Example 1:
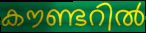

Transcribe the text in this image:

കൗണ്ടറിൽ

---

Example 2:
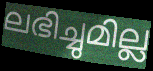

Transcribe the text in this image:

ലഭിച്ചുമില്ല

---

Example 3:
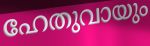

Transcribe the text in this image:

ഹേതുവായും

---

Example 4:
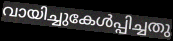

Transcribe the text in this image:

വായിച്ചുകേൾപ്പിച്ചതു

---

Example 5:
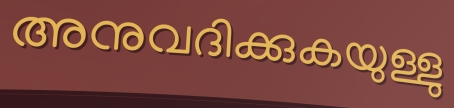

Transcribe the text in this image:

അനുവദിക്കുകയുള്ളു